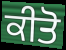
ਕੀਤੋ